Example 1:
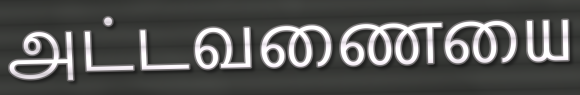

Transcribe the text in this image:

அட்டவணையை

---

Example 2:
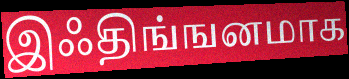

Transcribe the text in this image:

இஃதிங்ஙனமாக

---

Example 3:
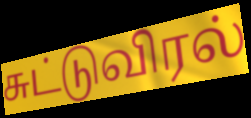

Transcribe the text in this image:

சுட்டுவிரல்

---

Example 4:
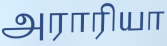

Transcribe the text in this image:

அராரியா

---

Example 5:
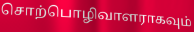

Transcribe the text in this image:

சொற்பொழிவாளராகவும்